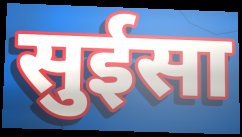
सुईसा